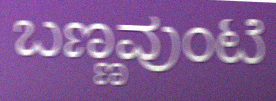
ಬಣ್ಣವುಂಟೆ